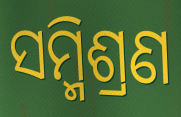
ସମ୍ମିଶ୍ରଣ